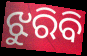
ଝୁରିବି